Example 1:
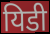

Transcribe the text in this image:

यिडी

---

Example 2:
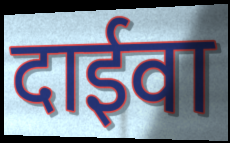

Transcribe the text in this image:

दाईवा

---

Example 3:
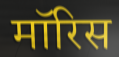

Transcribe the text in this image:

मॉरिस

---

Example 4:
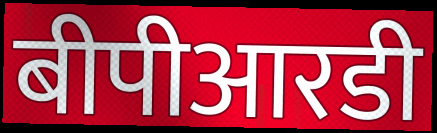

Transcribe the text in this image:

बीपीआरडी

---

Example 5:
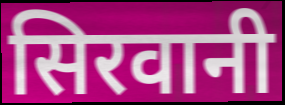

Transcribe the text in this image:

सिरवानी